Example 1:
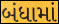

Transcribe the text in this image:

બંધામાં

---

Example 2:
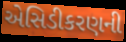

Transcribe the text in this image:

એસિડીકરણની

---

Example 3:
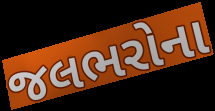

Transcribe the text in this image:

જલભરોના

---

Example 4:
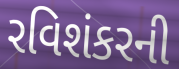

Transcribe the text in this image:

રવિશંકરની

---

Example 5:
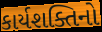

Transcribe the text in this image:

કાર્યશક્તિનો